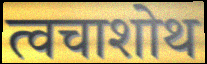
त्वचाशोथ